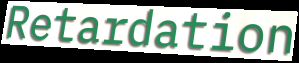
Retardation